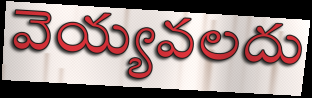
వెయ్యవలదు